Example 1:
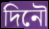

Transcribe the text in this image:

দিনৌ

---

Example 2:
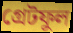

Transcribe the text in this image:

গ্ৰেটফুল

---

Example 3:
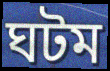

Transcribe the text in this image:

ঘটম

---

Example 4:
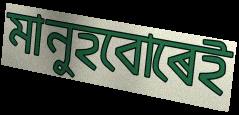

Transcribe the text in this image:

মানুহবোৰেই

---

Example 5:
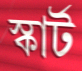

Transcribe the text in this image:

স্কাৰ্ট